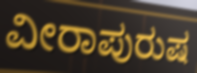
ವೀರಾಪುರುಷ